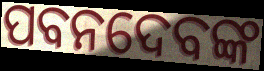
ପବନଦେବଙ୍କ